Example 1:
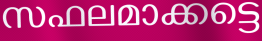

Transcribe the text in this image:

സഫലമാക്കട്ടെ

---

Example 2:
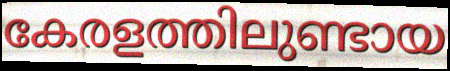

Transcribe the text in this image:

കേരളത്തിലുണ്ടായ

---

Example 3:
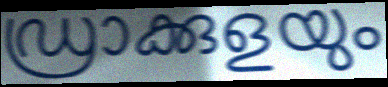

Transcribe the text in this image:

ഡ്രാക്കുളയും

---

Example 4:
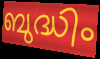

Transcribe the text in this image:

ബുദ്ധിം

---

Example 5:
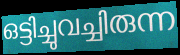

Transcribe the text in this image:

ഒട്ടിച്ചുവച്ചിരുന്ന